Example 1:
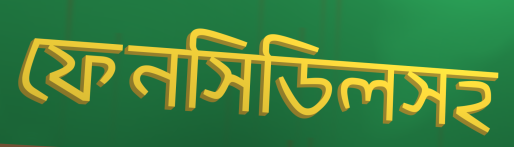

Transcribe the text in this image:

ফেনসিডিলসহ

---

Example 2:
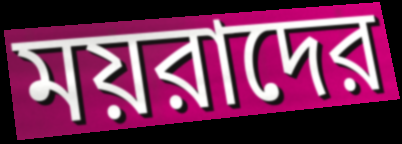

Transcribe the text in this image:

ময়রাদের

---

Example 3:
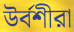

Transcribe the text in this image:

উর্বশীরা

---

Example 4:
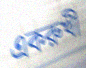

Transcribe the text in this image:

একরুখী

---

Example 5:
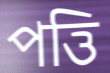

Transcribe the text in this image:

পত্তি